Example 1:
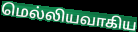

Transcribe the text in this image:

மெல்லியவாகிய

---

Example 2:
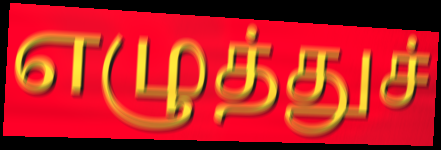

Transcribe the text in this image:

எழுத்துச்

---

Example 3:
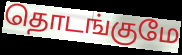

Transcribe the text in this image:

தொடங்குமே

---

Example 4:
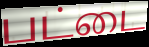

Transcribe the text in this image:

பட்டை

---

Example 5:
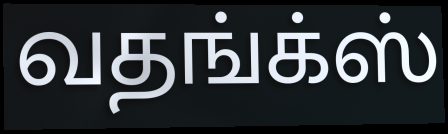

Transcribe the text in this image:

வதங்க்ஸ்